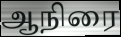
ஆநிரை